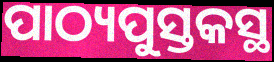
ପାଠ୍ୟପୁସ୍ତକସ୍ଥ